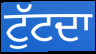
ਟੁੱਟਦਾ